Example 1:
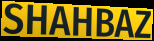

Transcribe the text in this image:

SHAHBAZ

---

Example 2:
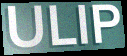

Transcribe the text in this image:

ULIP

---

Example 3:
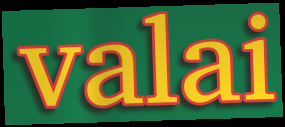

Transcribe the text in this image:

valai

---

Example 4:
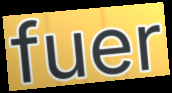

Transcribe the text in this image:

fuer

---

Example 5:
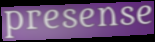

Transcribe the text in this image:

presense